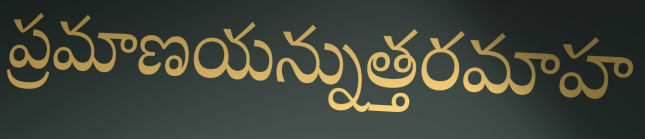
ప్రమాణయన్నుత్తరమాహ